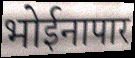
भोईनापार